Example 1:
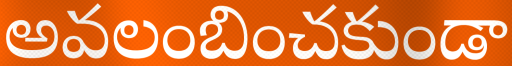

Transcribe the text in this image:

అవలంబించకుండా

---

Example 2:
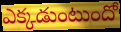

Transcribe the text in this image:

ఎక్కడుంటుందో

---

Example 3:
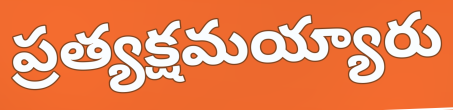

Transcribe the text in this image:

ప్రత్యక్షమయ్యారు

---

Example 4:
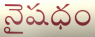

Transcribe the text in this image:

నైషధం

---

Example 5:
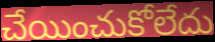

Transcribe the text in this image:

చేయించుకోలేదు